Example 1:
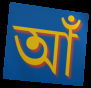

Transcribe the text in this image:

আঁ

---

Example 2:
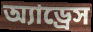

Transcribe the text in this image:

অ্যাড্রেস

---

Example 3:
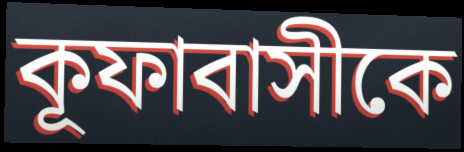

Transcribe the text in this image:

কূফাবাসীকে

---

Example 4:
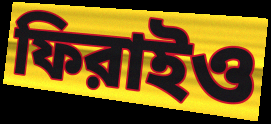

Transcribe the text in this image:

ফিরাইও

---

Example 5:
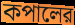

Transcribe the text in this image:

কপালের